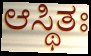
ಆಸ್ಥಿತಃ